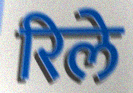
रिले